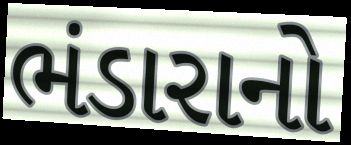
ભંડારાનો